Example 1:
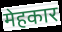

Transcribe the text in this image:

मेहकार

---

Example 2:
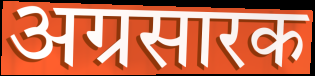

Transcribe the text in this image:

अग्रसारक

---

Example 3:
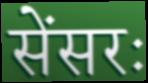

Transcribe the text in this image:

सेंसरः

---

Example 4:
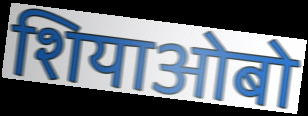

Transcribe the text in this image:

शियाओबो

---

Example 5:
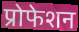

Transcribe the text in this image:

प्रोफेशन